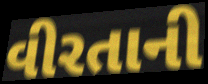
વીરતાની